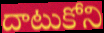
దాటుకోని